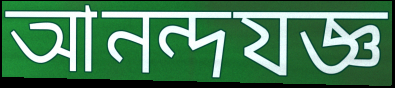
আনন্দযজ্ঞ